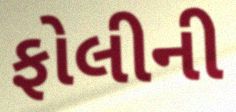
ફોલીની